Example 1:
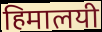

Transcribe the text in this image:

हिमालयी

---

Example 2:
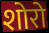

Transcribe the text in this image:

शोरो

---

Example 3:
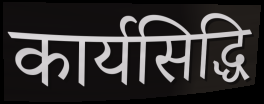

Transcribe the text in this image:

कार्यसिद्धि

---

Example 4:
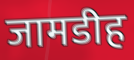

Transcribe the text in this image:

जामडीह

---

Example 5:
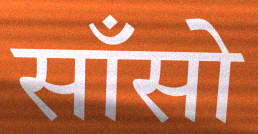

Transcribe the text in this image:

साँसो